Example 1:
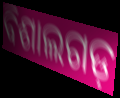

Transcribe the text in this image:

ବିଶାଲଗଡ଼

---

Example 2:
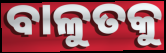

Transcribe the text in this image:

ବାଳୁତକୁ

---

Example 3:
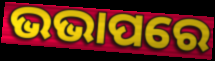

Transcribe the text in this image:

ଭଭାପରେ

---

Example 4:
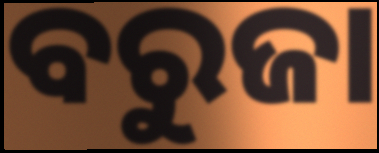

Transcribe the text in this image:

ବରୁଜା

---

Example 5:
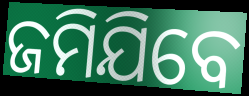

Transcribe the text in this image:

ଜମିଯିବେ